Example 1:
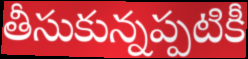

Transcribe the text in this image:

తీసుకున్నప్పటికీ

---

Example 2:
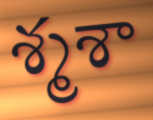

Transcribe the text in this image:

శ్మశా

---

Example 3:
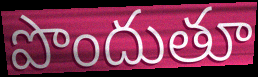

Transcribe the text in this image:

పొందుతూ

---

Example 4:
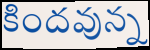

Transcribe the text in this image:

కిందవున్న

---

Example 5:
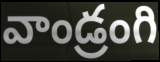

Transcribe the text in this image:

వాండ్రంగి